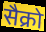
सैक्रो